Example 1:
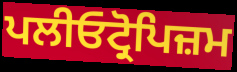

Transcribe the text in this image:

ਪਲੀਓਟ੍ਰੋਪਿਜ਼ਮ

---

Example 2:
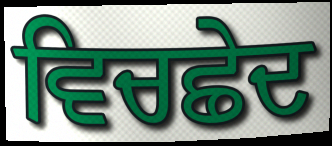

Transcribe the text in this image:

ਵਿਚਛੇਦ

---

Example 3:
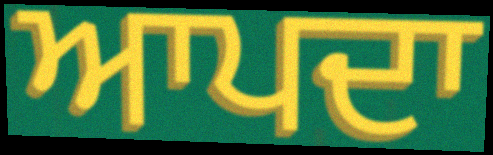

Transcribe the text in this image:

ਆਪਦਾ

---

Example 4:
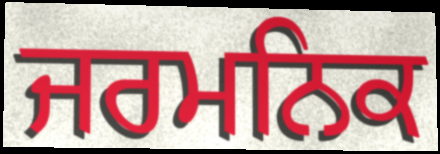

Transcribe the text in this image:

ਜਰਮਨਿਕ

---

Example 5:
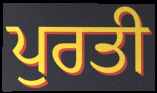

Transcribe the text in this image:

ਪੁਰਤੀ